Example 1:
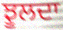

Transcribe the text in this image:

ਝੂਲਦਾ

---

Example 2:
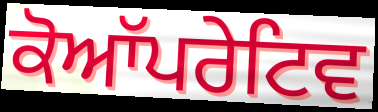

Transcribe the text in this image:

ਕੋਆੱਪਰੇਟਿਵ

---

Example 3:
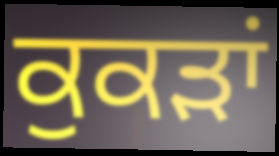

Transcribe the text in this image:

ਕੁਕੜਾਂ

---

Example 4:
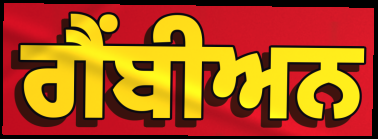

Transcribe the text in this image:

ਗੈਂਬੀਅਨ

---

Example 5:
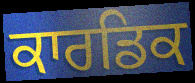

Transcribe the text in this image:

ਕਾਰਡਿਕ